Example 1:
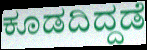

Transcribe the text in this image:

ಕೂಡದಿದ್ದಡೆ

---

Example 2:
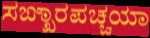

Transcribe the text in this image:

ಸಙ್ಖಾರಪಚ್ಚಯಾ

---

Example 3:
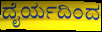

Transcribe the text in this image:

ದೈರ್ಯದಿಂದ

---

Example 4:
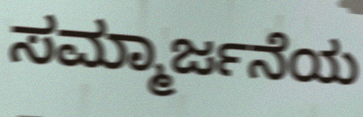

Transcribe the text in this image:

ಸಮ್ಮಾರ್ಜನೆಯ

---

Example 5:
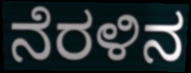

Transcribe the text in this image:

ನೆರಳಿನ